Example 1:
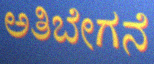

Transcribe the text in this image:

ಅತಿಬೇಗನೆ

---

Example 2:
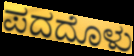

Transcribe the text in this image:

ಪದದೊಳು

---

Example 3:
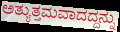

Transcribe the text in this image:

ಅತ್ಯುತ್ತಮವಾದದ್ದನ್ನು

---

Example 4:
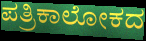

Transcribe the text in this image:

ಪತ್ರಿಕಾಲೋಕದ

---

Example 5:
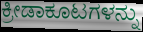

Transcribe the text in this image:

ಕ್ರೀಡಾಕೂಟಗಳನ್ನು